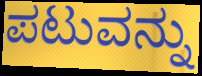
ಪಟುವನ್ನು